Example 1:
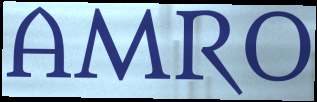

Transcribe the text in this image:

AMRO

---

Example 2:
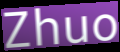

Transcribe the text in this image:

Zhuo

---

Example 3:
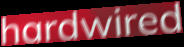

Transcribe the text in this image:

hardwired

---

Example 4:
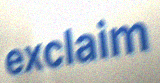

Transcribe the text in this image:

exclaim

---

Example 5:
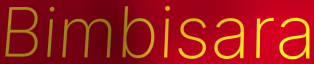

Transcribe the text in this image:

Bimbisara